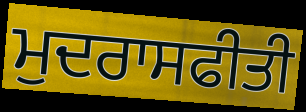
ਮੁਦਰਾਸਫੀਤੀ